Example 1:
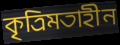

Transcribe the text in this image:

কৃত্রিমতাহীন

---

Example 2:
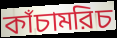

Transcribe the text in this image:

কাঁচামরিচ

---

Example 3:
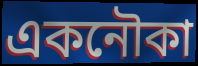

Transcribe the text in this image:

একনৌকা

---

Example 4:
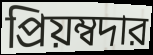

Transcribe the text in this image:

প্রিয়ম্বদার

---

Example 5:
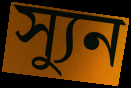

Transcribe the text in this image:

স্যুন